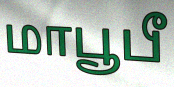
மாபூபீ